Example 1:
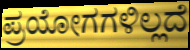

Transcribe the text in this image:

ಪ್ರಯೋಗಗಳಿಲ್ಲದೆ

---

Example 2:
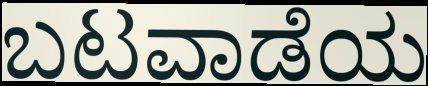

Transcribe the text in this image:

ಬಟವಾಡೆಯ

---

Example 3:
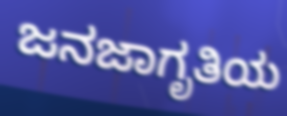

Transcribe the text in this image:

ಜನಜಾಗೃತಿಯ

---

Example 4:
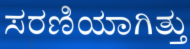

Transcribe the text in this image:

ಸರಣಿಯಾಗಿತ್ತು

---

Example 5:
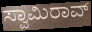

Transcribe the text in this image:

ಸ್ವಾಮಿರಾವ್